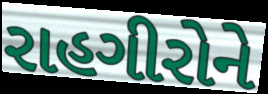
રાહગીરોને